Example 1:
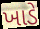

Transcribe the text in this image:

ખાડે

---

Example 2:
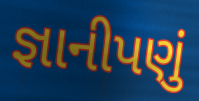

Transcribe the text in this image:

જ્ઞાનીપણું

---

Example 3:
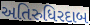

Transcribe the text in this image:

અતિરુધિરદાબ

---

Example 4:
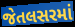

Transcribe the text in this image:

જેતલસરમાં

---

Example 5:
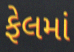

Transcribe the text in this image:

ફેલમાં